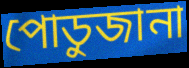
পোডুজানা